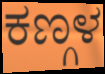
ಕಣ್ಗಳ